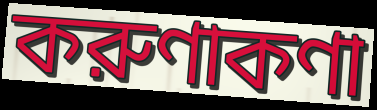
করুণাকণা